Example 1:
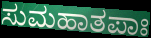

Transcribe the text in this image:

ಸುಮಹಾತಪಾಃ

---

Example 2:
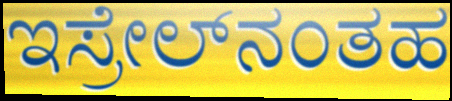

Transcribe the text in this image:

ಇಸ್ರೇಲ್‌ನಂತಹ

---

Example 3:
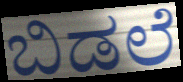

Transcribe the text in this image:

ಬಿಡಲೆ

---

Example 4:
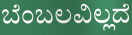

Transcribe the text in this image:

ಬೆಂಬಲವಿಲ್ಲದೆ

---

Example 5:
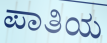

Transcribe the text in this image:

ಪಾತಿಯ